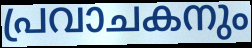
പ്രവാചകനും